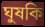
ঘুষকি